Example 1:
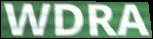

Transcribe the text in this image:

WDRA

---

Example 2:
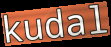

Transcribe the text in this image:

kudal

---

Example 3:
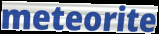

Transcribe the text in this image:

meteorite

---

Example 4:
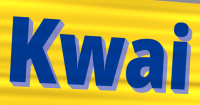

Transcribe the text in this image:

Kwai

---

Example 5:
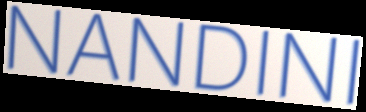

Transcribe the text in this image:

NANDINI